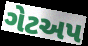
ગેટઅપ